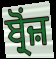
ਬ੍ਰੋਂਜ਼